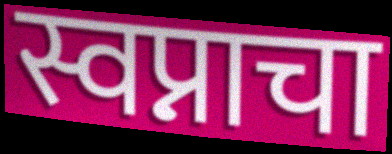
स्वप्नाचा